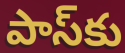
పాస్‌కు